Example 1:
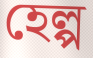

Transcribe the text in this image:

হেল্প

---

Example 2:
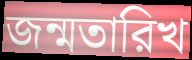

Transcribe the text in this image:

জন্মতারিখ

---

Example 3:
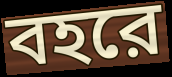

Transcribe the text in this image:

বহরে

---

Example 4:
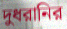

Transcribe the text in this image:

দুধরানির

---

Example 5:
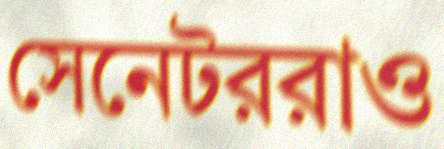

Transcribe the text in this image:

সেনেটররাও